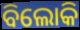
ବିଲୋକି